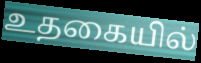
உதகையில்